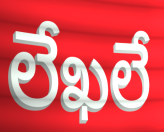
లేఖలే